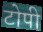
टोपी